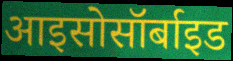
आइसोसॉर्बाइड